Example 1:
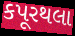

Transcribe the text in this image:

કપૂરથલા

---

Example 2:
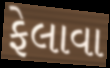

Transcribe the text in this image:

ફેલાવા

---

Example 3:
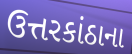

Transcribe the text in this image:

ઉત્તરકાંઠાના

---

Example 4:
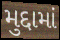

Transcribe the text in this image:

મુદ્દામાં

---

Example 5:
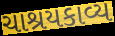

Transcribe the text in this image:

ચાશ્રયકાવ્ય